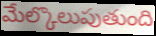
మేల్కొలుపుతుంది